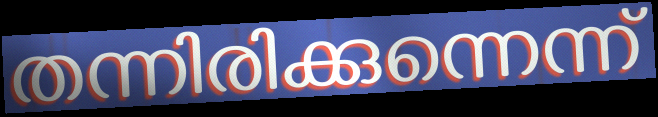
തന്നിരിക്കുന്നെന്ന്